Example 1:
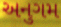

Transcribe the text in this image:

અનુગમ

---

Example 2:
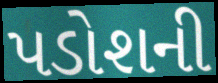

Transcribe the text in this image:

પડોશની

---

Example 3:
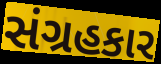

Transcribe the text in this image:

સંગ્રહકાર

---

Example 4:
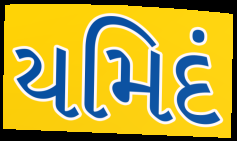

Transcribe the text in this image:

યમિદં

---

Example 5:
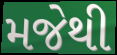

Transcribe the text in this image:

મજેથી